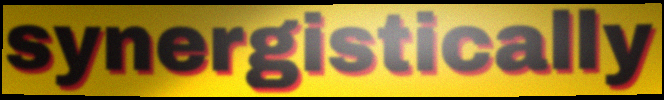
synergistically